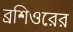
ব্রশিওরের